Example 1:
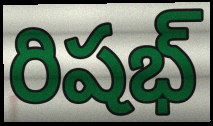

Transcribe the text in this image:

రిషభ్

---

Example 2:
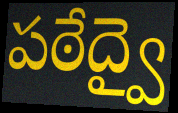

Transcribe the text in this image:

పఠేద్వై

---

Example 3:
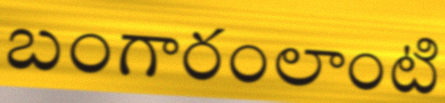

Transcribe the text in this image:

బంగారంలాంటి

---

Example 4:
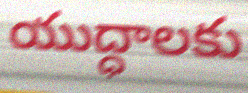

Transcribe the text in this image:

యుద్ధాలకు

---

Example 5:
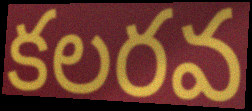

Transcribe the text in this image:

కలరవ